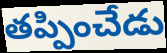
తప్పించేడు